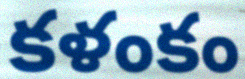
కళంకం